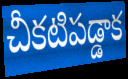
చీకటిపడ్డాక